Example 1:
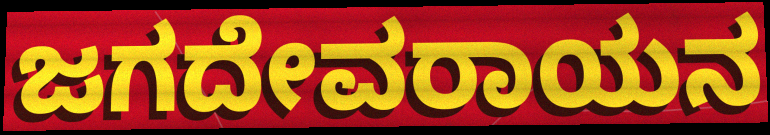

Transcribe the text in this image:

ಜಗದೇವರಾಯನ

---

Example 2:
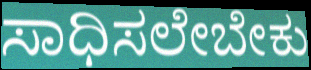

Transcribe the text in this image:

ಸಾಧಿಸಲೇಬೇಕು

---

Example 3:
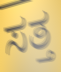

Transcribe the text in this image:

ಸತ್ತ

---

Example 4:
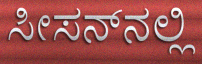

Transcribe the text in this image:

ಸೀಸನ್‌ನಲ್ಲಿ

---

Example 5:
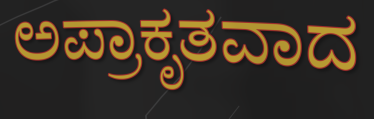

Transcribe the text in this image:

ಅಪ್ರಾಕೃತವಾದ